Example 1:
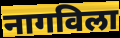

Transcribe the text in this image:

नागविला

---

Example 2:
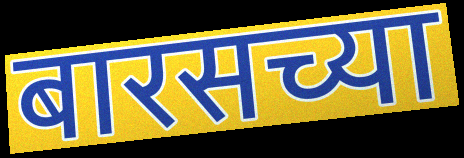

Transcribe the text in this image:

बारसच्या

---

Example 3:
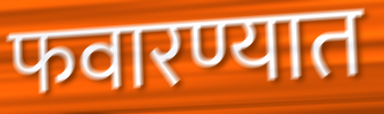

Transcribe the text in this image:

फवारण्यात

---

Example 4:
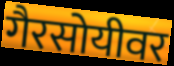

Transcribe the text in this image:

गैरसोयीवर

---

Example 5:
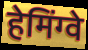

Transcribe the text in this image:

हेमिंग्वे